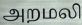
அறமலி